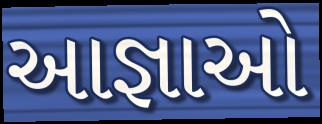
આજ્ઞાઓ